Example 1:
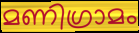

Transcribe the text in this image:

മണിഗ്രാമം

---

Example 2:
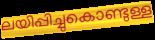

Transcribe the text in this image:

ലയിപ്പിച്ചുകൊണ്ടുള്ള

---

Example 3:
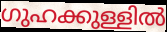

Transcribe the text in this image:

ഗുഹക്കുള്ളിൽ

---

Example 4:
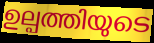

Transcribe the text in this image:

ഉല്പത്തിയുടെ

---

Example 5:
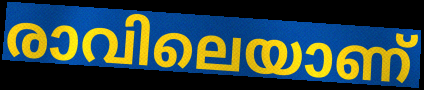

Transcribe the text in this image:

രാവിലെയാണ്